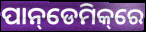
ପାନ୍‌ଡେମିକ୍‌ରେ